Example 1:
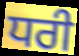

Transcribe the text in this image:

ਧਰੀ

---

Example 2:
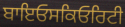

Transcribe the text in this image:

ਬਾਇਓਸਕਿਓਰਿਟੀ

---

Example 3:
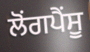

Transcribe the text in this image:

ਲੋਂਗਪੈਂਸੂ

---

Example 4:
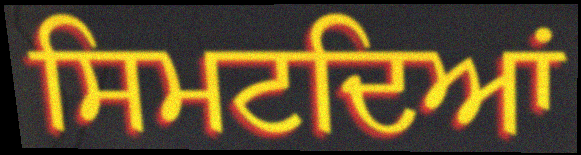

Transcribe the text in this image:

ਸਿਮਟਦਿਆਂ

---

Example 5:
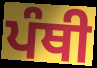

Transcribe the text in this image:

ਪੰਥੀ